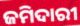
ଜମିଦାରୀ